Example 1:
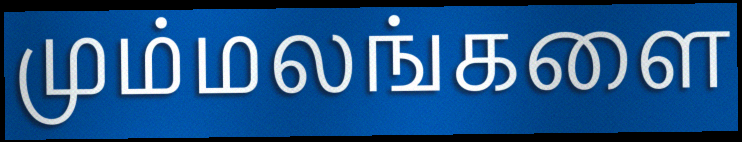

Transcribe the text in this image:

மும்மலங்களை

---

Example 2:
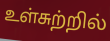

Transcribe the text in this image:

உள்சுற்றில்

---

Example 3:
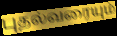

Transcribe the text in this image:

புதல்வரையும்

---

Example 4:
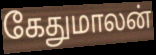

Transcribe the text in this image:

கேதுமாலன்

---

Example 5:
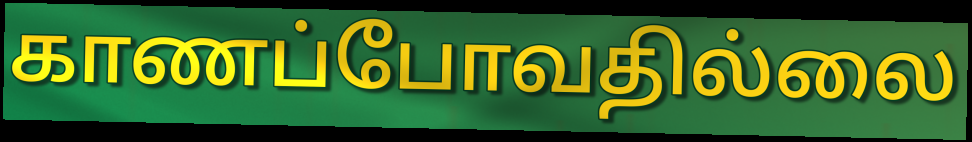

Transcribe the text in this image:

காணப்போவதில்லை